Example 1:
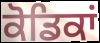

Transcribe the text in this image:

ਕੋਡਿਕਾਂ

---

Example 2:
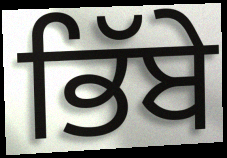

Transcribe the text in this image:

ਭਿੱਬੇ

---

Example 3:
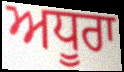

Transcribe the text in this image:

ਅਧੂਰਾ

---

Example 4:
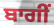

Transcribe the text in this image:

ਬਾਗੀਂ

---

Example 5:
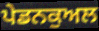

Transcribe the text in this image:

ਪੇਡਨਕੁਅਲ